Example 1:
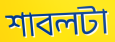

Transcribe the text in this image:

শাবলটা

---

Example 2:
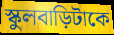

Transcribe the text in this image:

স্কুলবাড়িটাকে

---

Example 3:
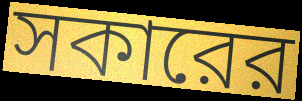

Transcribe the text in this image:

সকারের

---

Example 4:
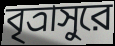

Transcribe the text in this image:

বৃত্রাসুরে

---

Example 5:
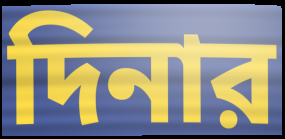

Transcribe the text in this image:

দিনার